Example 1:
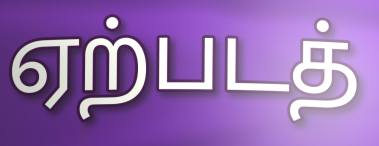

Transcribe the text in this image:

ஏற்படத்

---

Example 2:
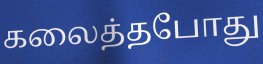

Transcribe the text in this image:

கலைத்தபோது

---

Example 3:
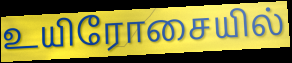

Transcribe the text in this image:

உயிரோசையில்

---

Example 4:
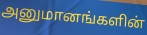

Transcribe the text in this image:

அனுமானங்களின்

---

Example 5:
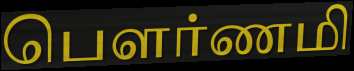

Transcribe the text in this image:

பௌர்ணமி